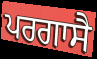
ਪਰਗਾਸੈ